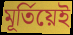
মূৰ্তিয়েই